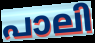
പാലി